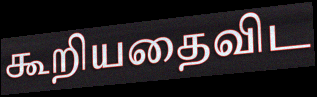
கூறியதைவிட